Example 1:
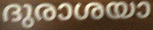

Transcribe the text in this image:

ദുരാശയാ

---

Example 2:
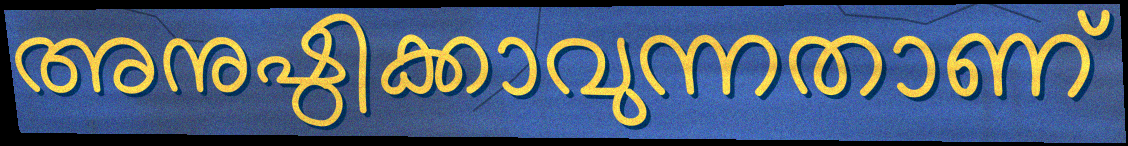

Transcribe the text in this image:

അനുഷ്ഠിക്കാവുന്നതാണ്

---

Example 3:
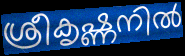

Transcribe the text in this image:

ശ്രീകൃഷ്ണനിൽ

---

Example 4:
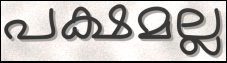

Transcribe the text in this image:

പക്ഷമല്ല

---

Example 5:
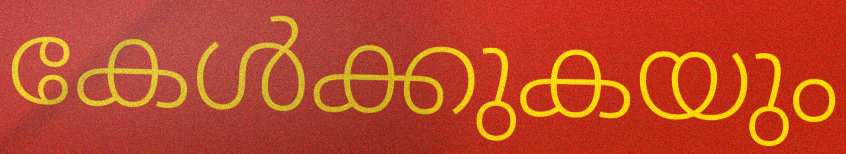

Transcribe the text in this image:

കേൾക്കുകയും